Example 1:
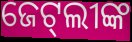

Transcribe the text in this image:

ଜେଟ୍‌ଲୀଙ୍କ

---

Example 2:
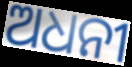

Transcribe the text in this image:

ଅଧନୀ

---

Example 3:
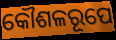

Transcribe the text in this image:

କୌଶଳରୂପେ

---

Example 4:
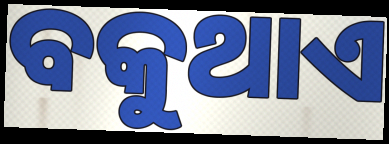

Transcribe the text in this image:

ବକୁଥାଏ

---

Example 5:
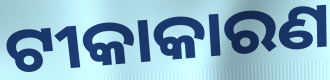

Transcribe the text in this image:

ଟୀକାକାରଣ